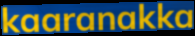
kaaranakka